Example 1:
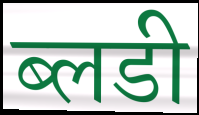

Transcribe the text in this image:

ब्लडी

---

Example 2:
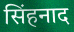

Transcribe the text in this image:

सिंहनाद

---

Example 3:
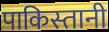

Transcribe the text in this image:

पाकिस्‍तानी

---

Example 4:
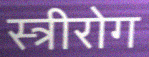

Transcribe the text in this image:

स्त्रीरोग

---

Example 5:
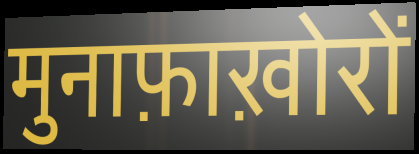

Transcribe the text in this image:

मुनाफ़ाख़ोरों